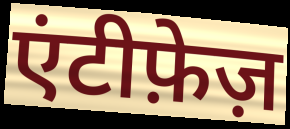
एंटीफ़ेज़